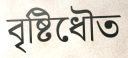
বৃষ্টিধৌত